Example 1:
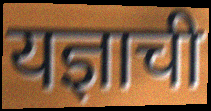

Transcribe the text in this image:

यज्ञाची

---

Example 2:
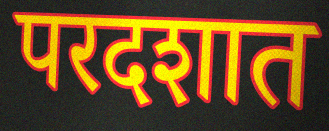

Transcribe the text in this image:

परदशात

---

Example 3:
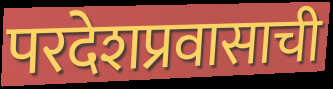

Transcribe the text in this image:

परदेशप्रवासाची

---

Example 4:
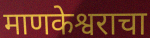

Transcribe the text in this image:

माणकेश्वराचा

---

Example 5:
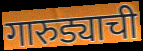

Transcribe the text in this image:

गारुड्याची